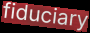
fiduciary